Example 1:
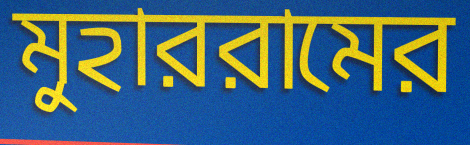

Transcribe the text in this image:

মুহাররামের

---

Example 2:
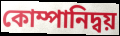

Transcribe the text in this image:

কোম্পানিদ্বয়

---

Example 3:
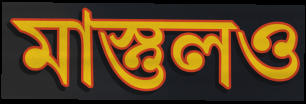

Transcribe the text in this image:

মাস্তুলও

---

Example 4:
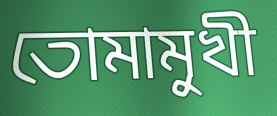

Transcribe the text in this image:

তোমামুখী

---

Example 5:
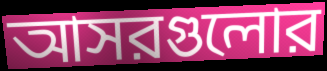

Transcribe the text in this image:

আসরগুলোর